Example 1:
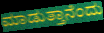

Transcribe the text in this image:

ಮಾಡುತ್ತಾನೆಂದು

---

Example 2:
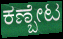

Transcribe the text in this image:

ಕಣ್ಬೇಟ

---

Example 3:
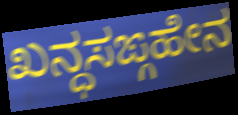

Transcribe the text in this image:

ಖನ್ಧಸಙ್ಗಹೇನ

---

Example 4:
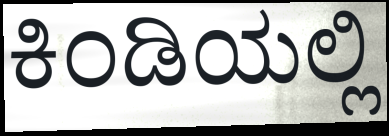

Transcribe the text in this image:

ಕಿಂಡಿಯಲ್ಲಿ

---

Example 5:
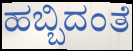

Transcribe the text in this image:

ಹಬ್ಬಿದಂತೆ